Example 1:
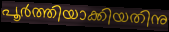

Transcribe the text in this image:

പൂർത്തിയാക്കിയതിനു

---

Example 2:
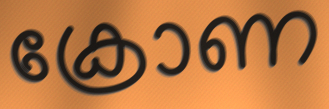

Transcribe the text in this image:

ക്രോണ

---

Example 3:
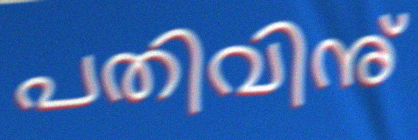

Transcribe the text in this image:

പതിവിനു്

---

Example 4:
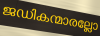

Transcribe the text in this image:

ജഡികന്മാരല്ലോ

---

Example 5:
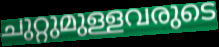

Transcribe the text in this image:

ചുറ്റുമുള്ളവരുടെ